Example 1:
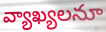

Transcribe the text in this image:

వ్యాఖ్యలనూ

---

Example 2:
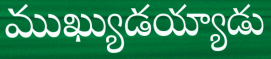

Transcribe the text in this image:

ముఖ్యుడయ్యాడు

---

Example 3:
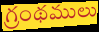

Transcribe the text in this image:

గ్రంథములు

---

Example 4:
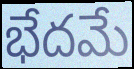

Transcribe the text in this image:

భేదమే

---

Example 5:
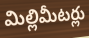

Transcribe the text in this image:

మిల్లిమీటర్లు